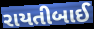
રાયતીબાઈ